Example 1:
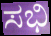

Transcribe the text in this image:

ಸಭಿ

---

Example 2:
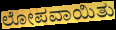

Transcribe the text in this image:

ಲೋಪವಾಯಿತು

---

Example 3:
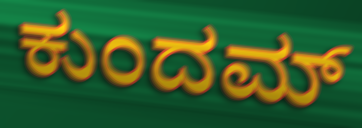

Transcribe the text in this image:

ಕುಂದಮ್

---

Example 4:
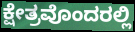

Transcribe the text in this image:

ಕ್ಷೇತ್ರವೊಂದರಲ್ಲಿ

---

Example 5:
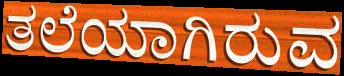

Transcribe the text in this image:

ತಲೆಯಾಗಿರುವ